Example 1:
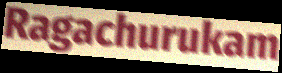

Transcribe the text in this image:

Ragachurukam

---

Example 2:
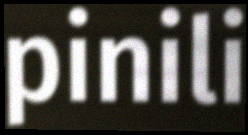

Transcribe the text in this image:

pinili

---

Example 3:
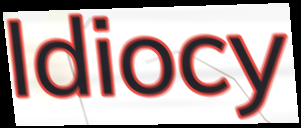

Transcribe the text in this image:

Idiocy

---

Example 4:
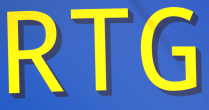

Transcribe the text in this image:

RTG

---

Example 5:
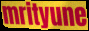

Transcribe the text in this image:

mrityune